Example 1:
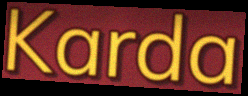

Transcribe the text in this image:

Karda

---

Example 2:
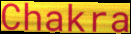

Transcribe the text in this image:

Chakra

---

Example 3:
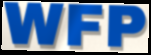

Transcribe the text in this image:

WFP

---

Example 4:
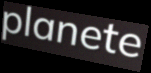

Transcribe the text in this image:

planete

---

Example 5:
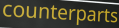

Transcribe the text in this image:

counterparts